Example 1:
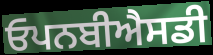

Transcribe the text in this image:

ਓਪਨਬੀਐਸਡੀ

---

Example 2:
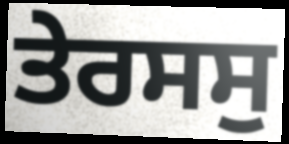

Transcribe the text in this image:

ਤੇਰਸਸੁ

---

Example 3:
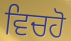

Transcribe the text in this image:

ਵਿਚਹੋ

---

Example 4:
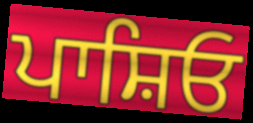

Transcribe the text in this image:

ਪਾਸ਼ਿਓ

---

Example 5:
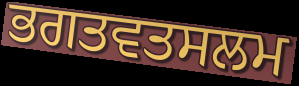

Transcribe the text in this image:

ਭਗਤਵਤਸਲਮ